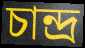
চান্দ্ৰ